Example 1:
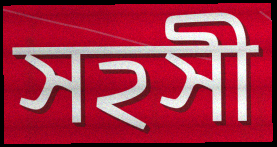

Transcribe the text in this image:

সহসী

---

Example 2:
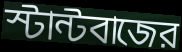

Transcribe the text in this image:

স্টান্টবাজের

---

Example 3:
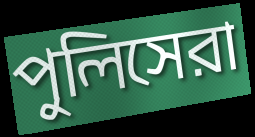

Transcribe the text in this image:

পুলিসেরা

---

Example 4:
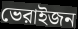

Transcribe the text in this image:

ভেরাইজন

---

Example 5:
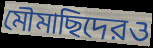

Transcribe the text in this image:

মৌমাছিদেরও